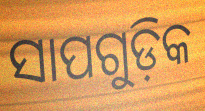
ସାପଗୁଡ଼ିକ